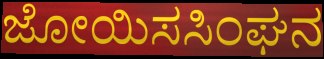
ಜೋಯಿಸಸಿಂಘನ